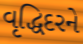
વૃદ્ધિદરને